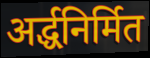
अर्द्धनिर्मित